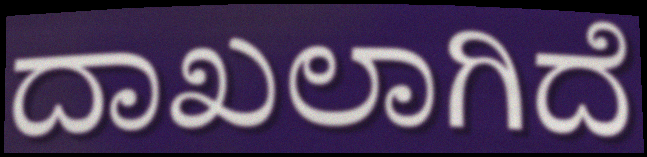
ದಾಖಲಾಗಿದೆ